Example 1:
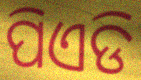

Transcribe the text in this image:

ପିଏଡି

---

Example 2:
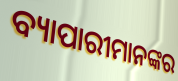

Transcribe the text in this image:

ବ୍ୟାପାରୀମାନଙ୍କର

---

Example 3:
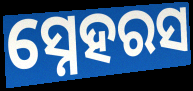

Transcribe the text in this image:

ସ୍ନେହରସ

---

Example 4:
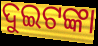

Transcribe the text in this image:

ଦୁଇଟଙ୍କା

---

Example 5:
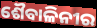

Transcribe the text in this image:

ଶୈବାଳିନୀର